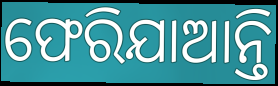
ଫେରିଯାଆନ୍ତି